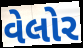
વેલોર